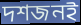
দশজনই